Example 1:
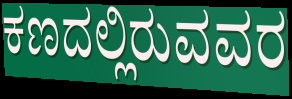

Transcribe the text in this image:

ಕಣದಲ್ಲಿರುವವರ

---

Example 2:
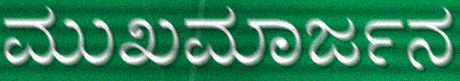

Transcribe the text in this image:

ಮುಖಮಾರ್ಜನ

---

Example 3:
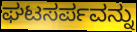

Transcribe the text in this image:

ಘಟಸರ್ಪವನ್ನು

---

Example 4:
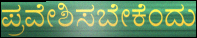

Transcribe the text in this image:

ಪ್ರವೇಶಿಸಬೇಕೆಂದು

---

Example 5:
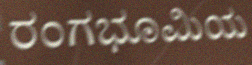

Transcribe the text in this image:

ರಂಗಭೂಮಿಯ